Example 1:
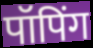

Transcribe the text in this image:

पॉपिंग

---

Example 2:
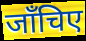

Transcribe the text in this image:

जाँचिए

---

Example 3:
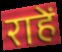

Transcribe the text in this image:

राहें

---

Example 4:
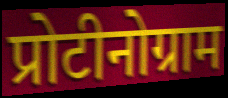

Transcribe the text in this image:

प्रोटीनोग्राम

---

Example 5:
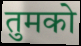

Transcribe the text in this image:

तुमको